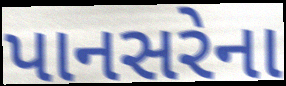
પાનસરેના